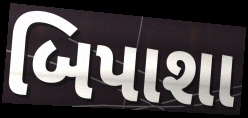
બિપાશા